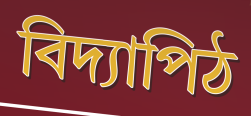
বিদ্যাপিঠ